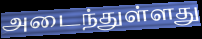
அடைந்துள்ளது